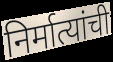
निर्मात्यांची